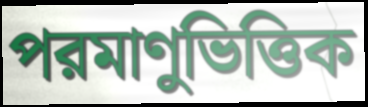
পরমাণুভিত্তিক